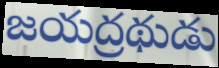
జయద్రథుడు